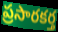
ప్రసారకర్త